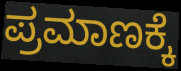
ಪ್ರಮಾಣಕ್ಕೆ